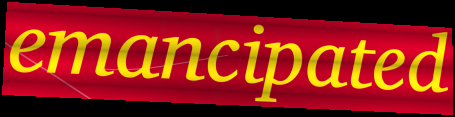
emancipated